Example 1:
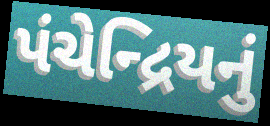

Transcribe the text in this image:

પંચેન્દ્રિયનું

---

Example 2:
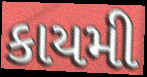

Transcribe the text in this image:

કાયમી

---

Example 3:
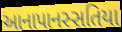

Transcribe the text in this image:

આનાપાનસ્સતિયા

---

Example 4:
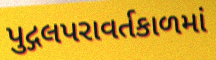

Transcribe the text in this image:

પુદ્ગલપરાવર્તકાળમાં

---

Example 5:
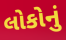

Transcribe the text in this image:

લોકોનું